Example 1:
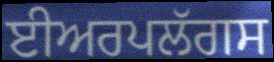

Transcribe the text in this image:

ਈਅਰਪਲੱਗਸ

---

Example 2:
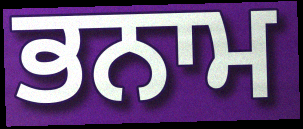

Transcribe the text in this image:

ਭਨਾਮ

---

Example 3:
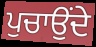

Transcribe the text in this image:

ਪੁਚਾਉਂਦੇ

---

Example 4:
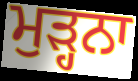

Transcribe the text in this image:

ਮੁੜ੍ਹਨਾ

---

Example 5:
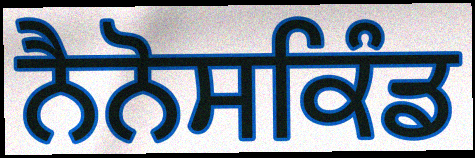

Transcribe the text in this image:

ਨੈਨੋਸਕਿੰਡ